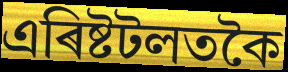
এৰিষ্টটলতকৈ